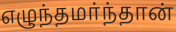
எழுந்தமர்ந்தான்